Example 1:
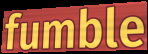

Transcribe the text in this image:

fumble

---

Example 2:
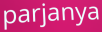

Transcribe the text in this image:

parjanya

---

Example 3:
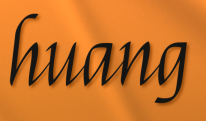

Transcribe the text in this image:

huang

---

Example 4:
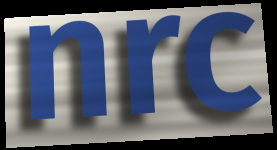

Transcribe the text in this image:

nrc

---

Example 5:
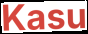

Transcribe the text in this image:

Kasu